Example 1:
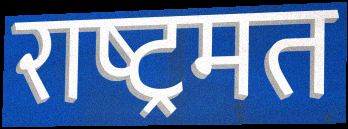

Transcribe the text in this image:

राष्ट्रमत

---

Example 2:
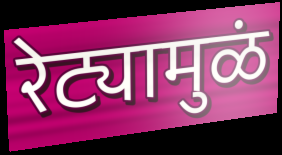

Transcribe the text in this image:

रेट्यामुळं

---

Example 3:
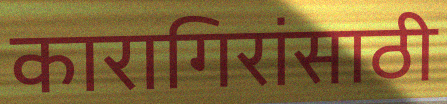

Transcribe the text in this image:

कारागिरांसाठी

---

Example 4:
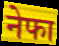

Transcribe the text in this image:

नेफा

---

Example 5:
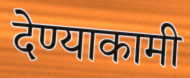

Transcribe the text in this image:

देण्याकामी